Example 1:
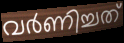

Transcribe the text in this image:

വർണിച്ചത്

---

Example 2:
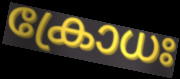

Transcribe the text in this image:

ക്രോധഃ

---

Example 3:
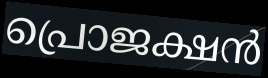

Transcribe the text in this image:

പ്രൊജക്ഷൻ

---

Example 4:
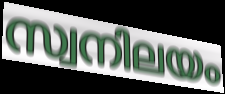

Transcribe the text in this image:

സ്വനിലയം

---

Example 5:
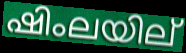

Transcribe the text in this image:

ഷിംലയില്